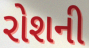
રોશની